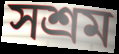
সশ্রম